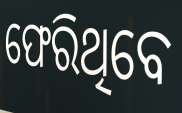
ଫେରିଥିବେ